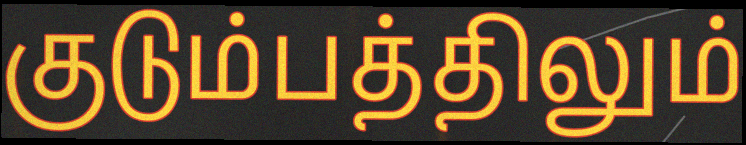
குடும்பத்திலும்